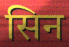
सिन